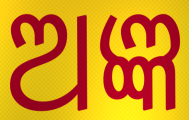
ଅଜ୍ଞ